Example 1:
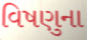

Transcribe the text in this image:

વિષણુના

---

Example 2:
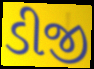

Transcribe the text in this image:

ડીજી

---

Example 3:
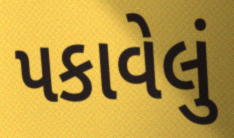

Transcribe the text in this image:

પકાવેલું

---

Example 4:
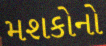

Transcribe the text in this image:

મશકોનો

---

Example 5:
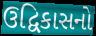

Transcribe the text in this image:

ઉદ્વિકાસનો